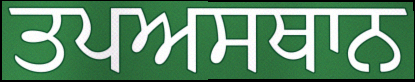
ਤਪਅਸਥਾਨ